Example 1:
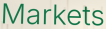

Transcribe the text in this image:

Markets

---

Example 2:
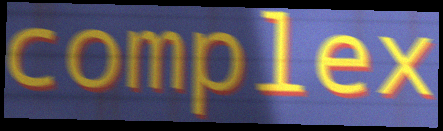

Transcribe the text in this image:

complex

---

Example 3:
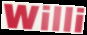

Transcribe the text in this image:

Willi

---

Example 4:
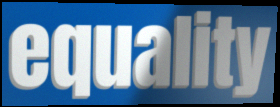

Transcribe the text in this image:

equality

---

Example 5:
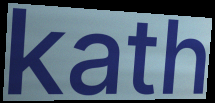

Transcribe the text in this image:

kath